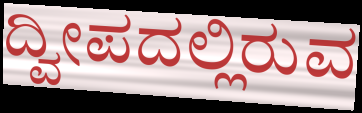
ದ್ವೀಪದಲ್ಲಿರುವ